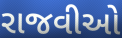
રાજવીઓ